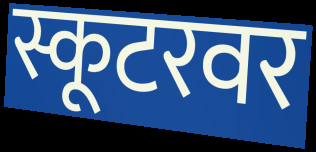
स्कूटरवर